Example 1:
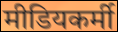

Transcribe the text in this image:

मीडियकर्मी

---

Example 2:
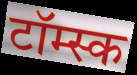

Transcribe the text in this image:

टॉम्स्क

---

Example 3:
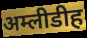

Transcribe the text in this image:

अम्लीडीह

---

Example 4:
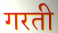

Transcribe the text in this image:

गरती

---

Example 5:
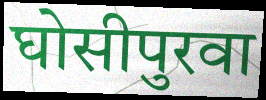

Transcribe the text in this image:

घोसीपुरवा